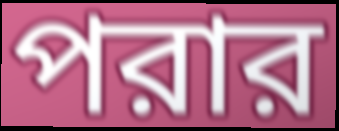
পরার